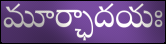
మూర్ఛాదయః